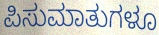
ಪಿಸುಮಾತುಗಳೂ